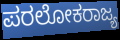
ಪರಲೋಕರಾಜ್ಯ